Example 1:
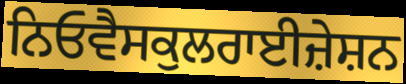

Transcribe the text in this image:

ਨਿਓਵੈਸਕੁਲਰਾਈਜ਼ੇਸ਼ਨ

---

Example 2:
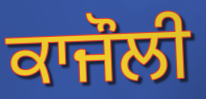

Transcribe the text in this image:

ਕਾਜੌਲੀ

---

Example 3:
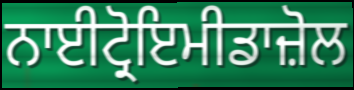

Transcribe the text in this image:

ਨਾਈਟ੍ਰੋਇਮੀਡਾਜ਼ੋਲ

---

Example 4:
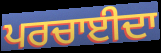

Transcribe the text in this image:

ਪਰਚਾਈਦਾ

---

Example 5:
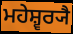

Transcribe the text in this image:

ਮਹੇਸ਼੍ਵਰ੍ਯੈ